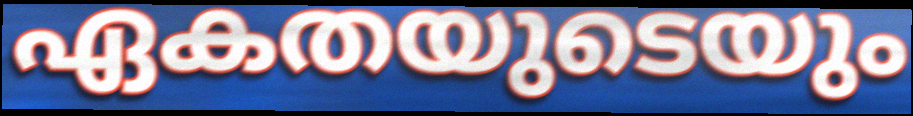
ഏകതയുടെയും